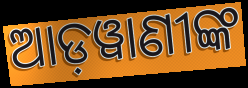
ଆଡ଼ୱାଣୀଙ୍କ